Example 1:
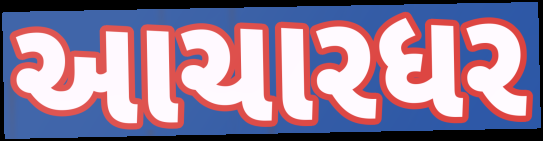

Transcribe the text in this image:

આચારધર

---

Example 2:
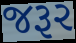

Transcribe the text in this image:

જરૂર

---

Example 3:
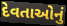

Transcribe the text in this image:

દેવતાઓનું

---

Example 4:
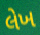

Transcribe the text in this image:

લેખ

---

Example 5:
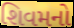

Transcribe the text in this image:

શિવમનો